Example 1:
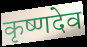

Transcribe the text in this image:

कृष्णदेव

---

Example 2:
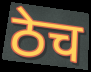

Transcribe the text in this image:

ठेच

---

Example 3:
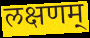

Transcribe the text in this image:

लक्षणम्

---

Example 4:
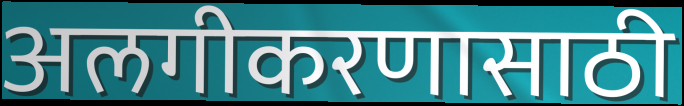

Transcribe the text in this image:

अलगीकरणासाठी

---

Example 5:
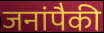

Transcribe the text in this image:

जनांपैकी